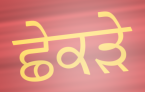
ਛੇਕੜੇ